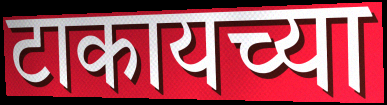
टाकायच्या